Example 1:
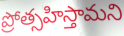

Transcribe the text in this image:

ప్రోత్సహిస్తామని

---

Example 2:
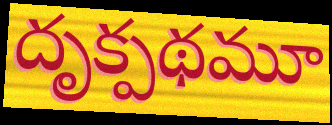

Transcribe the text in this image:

దృక్పథమూ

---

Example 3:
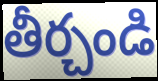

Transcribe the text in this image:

తీర్చండి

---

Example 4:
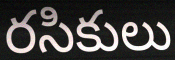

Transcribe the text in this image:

రసికులు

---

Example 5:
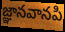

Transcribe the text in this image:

జ్ఞానవానపి